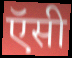
ऍसी